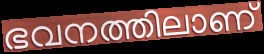
ഭവനത്തിലാണ്